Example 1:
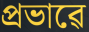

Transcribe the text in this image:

প্ৰভাৱে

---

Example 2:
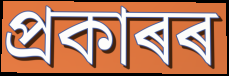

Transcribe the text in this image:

প্ৰকাৰৰ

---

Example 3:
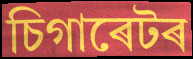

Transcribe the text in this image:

চিগাৰেটৰ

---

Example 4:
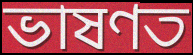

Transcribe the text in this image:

ভাষণত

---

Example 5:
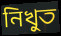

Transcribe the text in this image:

নিখুত